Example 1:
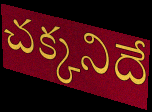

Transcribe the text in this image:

చక్కనిదే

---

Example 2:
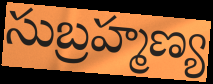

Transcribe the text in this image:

సుబ్రహ్మణ్య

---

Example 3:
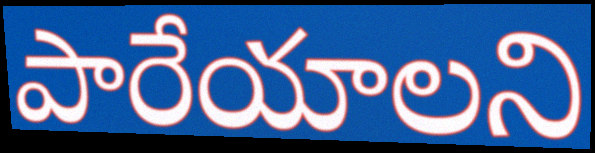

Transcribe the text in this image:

పారేయాలని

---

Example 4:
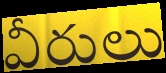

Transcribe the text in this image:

వీరులు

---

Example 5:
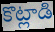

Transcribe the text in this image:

కొట్లాడి